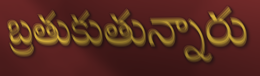
బ్రతుకుతున్నారు